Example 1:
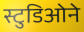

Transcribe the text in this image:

स्टुडिओने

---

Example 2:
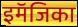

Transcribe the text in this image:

इमॅजिका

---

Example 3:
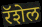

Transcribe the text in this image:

रॅशेल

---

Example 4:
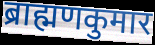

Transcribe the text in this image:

ब्राह्मणकुमार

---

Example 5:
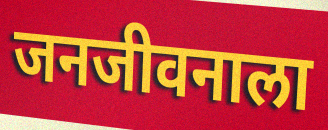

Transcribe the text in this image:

जनजीवनाला